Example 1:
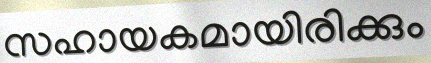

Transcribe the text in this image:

സഹായകമായിരിക്കും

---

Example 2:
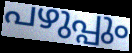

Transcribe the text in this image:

പഴുപ്പും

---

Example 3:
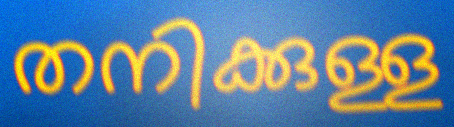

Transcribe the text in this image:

തനിക്കുള്ള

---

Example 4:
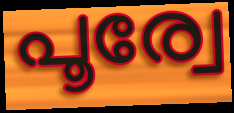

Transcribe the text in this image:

പൂര്വേ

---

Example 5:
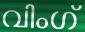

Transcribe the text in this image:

വിംഗ്